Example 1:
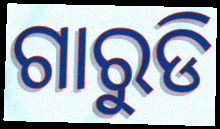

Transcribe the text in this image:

ଗାରୁଡି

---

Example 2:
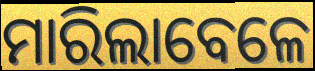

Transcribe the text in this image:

ମାରିଲାବେଳେ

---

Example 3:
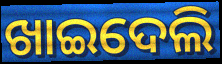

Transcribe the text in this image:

ଖାଇଦେଲି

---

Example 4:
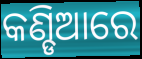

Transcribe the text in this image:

କଣ୍ଡିଆରେ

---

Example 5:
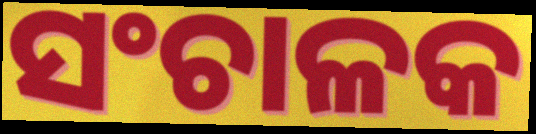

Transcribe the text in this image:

ସଂଚାଳକ